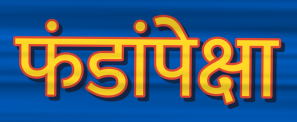
फंडांपेक्षा